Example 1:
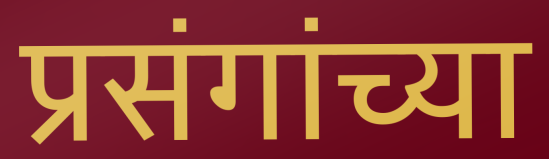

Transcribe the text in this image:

प्रसंगांच्या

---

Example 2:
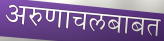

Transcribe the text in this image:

अरुणाचलबाबत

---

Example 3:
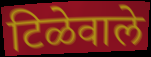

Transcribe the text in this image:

टिळेवाले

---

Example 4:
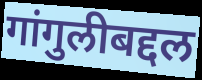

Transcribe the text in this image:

गांगुलीबद्दल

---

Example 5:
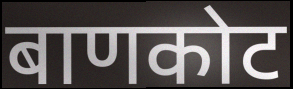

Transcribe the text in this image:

बाणकोट